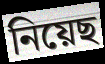
নিয়েছ